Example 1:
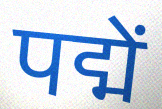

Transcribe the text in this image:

पद्में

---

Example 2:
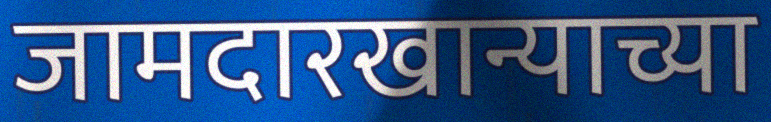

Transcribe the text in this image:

जामदारखान्याच्या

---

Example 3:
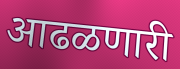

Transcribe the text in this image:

आढळणारी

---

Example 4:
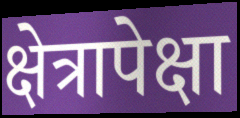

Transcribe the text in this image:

क्षेत्रापेक्षा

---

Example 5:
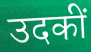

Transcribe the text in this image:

उदकीं